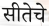
सीतेचे